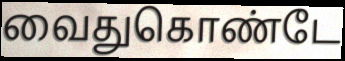
வைதுகொண்டே